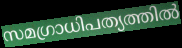
സമഗ്രാധിപത്യത്തിൽ